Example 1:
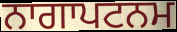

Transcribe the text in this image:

ਨਾਗਾਪਟਨਮ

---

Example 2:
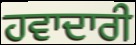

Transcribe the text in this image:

ਹਵਾਦਾਰੀ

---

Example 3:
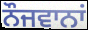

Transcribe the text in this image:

ਨੌਜਵਾਨਾਂ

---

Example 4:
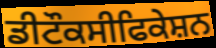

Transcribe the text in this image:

ਡੀਟੌਕਸੀਫਿਕੇਸ਼ਨ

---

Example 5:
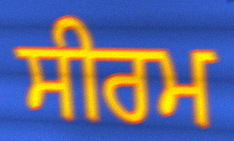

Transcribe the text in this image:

ਸੀਰਮ